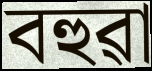
বহুৱা